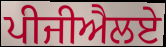
ਪੀਜੀਐਲਏ